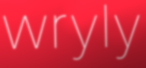
wryly